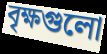
বৃক্ষগুলো